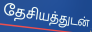
தேசியத்துடன்